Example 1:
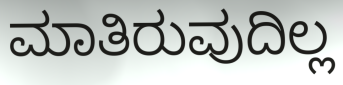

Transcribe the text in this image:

ಮಾತಿರುವುದಿಲ್ಲ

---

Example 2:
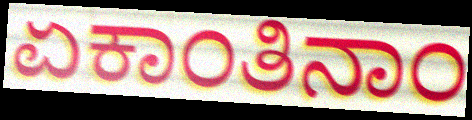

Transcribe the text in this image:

ಏಕಾಂತಿನಾಂ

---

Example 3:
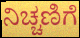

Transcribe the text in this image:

ನಿಚ್ಚಣಿಗೆ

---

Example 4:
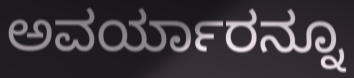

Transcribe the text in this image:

ಅವರ್ಯಾರನ್ನೂ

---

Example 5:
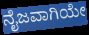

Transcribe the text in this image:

ನೈಜವಾಗಿಯೇ